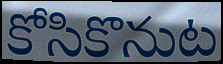
కోసికొనుట